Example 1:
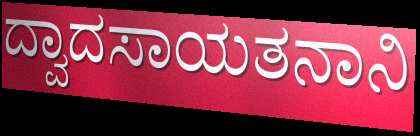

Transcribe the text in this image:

ದ್ವಾದಸಾಯತನಾನಿ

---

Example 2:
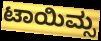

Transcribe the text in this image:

ಟಾಯಿಮ್ಸ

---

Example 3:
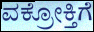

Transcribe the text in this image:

ವಕ್ರೋಕ್ತಿಗೆ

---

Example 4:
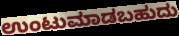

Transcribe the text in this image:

ಉಂಟುಮಾಡಬಹುದು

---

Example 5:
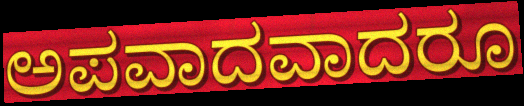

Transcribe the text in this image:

ಅಪವಾದವಾದರೂ